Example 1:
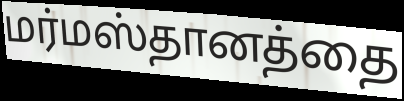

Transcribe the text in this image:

மர்மஸ்தானத்தை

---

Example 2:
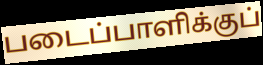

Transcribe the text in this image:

படைப்பாளிக்குப்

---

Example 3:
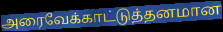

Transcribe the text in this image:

அரைவேக்காட்டுத்தனமான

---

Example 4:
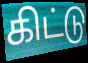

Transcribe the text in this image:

கிட்டு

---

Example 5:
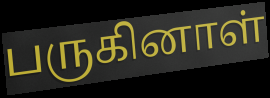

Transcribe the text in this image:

பருகினாள்